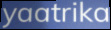
yaatrika